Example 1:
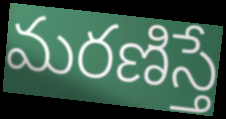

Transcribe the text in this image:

మరణిస్తే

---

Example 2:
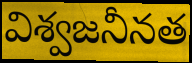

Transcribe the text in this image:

విశ్వజనీనత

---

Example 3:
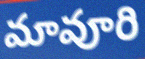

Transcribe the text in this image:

మావూరి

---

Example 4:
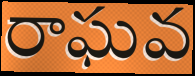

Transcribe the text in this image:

రాఘవ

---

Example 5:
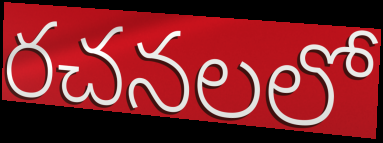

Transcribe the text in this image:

రచనలలో